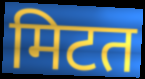
मिटत